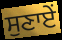
ਸੁਣਾਏਂ